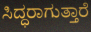
ಸಿದ್ಧರಾಗುತ್ತಾರೆ